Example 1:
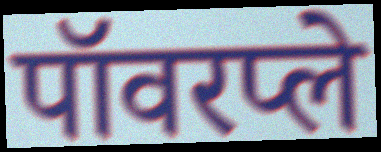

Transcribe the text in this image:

पॉवरप्ले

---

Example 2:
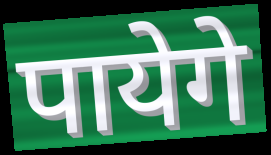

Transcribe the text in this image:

पायेगे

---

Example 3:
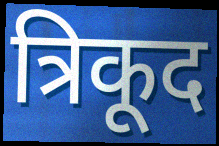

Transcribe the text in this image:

त्रिकूद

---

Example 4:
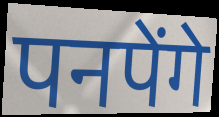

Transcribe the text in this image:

पनपेंगे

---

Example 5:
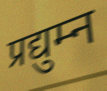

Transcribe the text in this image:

प्रद्युम्न